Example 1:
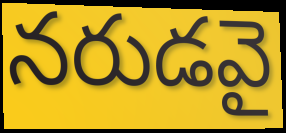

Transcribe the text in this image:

నరుడవై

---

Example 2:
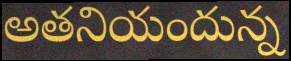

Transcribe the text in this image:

అతనియందున్న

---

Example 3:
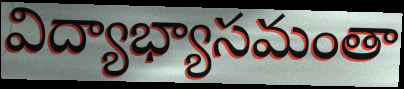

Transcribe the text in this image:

విద్యాభ్యాసమంతా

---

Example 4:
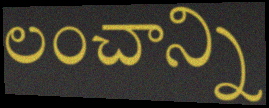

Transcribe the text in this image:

లంచాన్ని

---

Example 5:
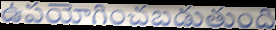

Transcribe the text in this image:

ఉపయోగించబడుతుంది